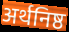
अर्थनिष्ठ